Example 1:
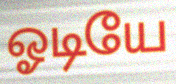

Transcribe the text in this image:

ஓடியே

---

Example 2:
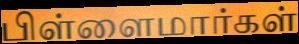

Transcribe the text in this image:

பிள்ளைமார்கள்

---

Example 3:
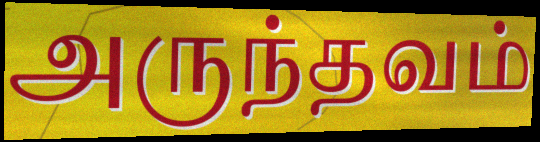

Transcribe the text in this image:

அருந்தவம்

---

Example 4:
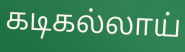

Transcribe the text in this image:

கடிகல்லாய்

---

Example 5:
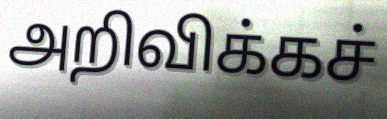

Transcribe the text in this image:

அறிவிக்கச்